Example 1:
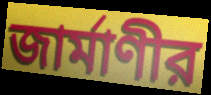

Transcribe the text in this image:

জার্মাণীর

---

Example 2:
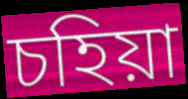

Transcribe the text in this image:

চহিয়া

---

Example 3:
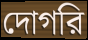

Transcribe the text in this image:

দোগরি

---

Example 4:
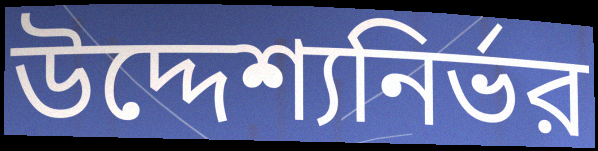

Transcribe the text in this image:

উদ্দেশ্যনির্ভর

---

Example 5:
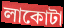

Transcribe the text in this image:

লাকোটা